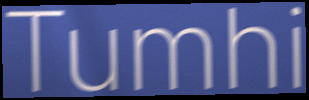
Tumhi